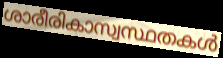
ശാരീരികാസ്വസ്ഥതകൾ